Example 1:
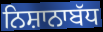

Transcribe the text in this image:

ਨਿਸ਼ਾਨਾਬੱਧ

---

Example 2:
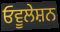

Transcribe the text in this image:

ਓਵੂਲੇਸ਼ਨ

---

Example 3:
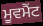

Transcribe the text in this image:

ਮੂਵਮੈਂਟ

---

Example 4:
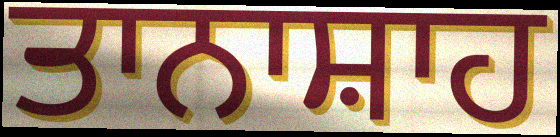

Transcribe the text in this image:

ਤਾਨਾਸ਼ਾਹ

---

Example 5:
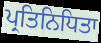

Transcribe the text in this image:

ਪ੍ਰਤਿਨਿਧਿਤਾ